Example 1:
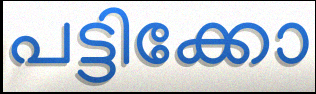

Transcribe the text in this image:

പട്ടിക്കോ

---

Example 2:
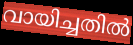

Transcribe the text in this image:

വായിച്ചതിൽ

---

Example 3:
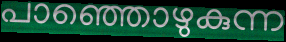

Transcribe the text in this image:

പാഞ്ഞൊഴുകുന്ന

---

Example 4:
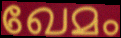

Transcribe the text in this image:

ഖേമം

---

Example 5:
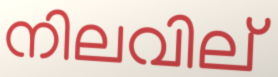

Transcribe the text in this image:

നിലവില്